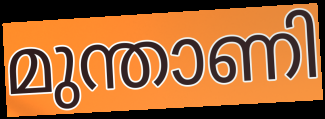
മുന്താണി